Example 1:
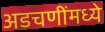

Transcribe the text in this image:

अडचणींमध्ये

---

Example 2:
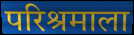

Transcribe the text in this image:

परिश्रमाला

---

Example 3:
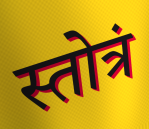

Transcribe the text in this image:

स्तोत्रं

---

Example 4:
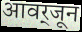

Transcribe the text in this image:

आवर्जून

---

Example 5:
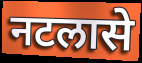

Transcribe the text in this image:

नटलासे